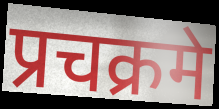
प्रचक्रमे